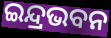
ଇନ୍ଦ୍ରଭବନ